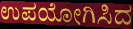
ಉಪಯೋಗಿಸಿದ